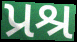
પ્રશ્ર